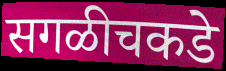
सगळीचकडे